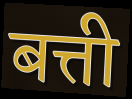
बत्ती